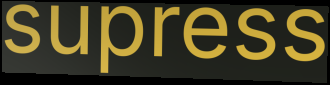
supress